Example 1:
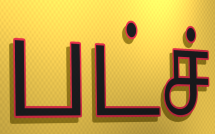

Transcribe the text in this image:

பட்ச்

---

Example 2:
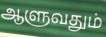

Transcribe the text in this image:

ஆளுவதும்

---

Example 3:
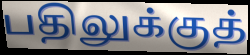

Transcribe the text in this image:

பதிலுக்குத்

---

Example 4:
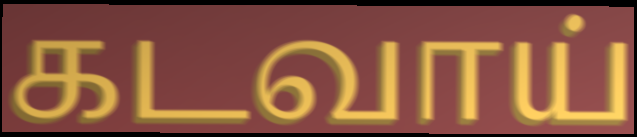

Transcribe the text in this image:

கடவாய்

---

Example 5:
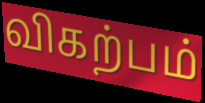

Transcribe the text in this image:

விகற்பம்